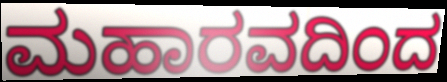
ಮಹಾರವದಿಂದ